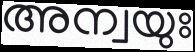
അന്വയുഃ